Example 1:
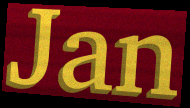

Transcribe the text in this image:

Jan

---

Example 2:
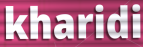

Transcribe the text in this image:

kharidi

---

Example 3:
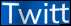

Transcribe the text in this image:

Twitt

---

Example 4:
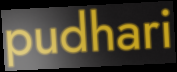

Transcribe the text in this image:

pudhari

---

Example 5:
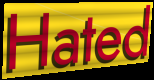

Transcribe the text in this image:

Hated